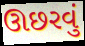
ઊછરવું